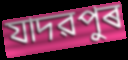
যাদৱপুৰ